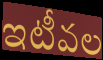
ఇటీవల